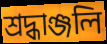
শ্ৰদ্ধাঞ্জলি